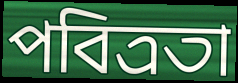
পবিত্রতা